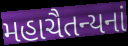
મહાચૈતન્યનાં